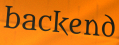
backend